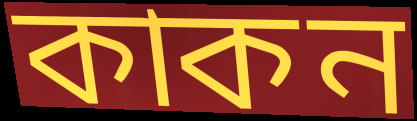
কাকন